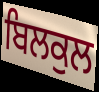
ਬਿਲਕੁਲ